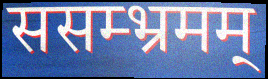
ससम्भ्रमम्